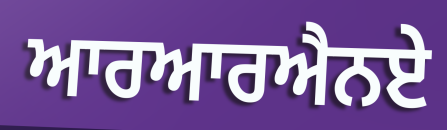
ਆਰਆਰਐਨਏ